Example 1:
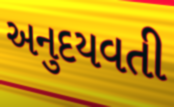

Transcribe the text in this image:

અનુદયવતી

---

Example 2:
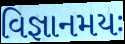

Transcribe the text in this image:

વિજ્ઞાનમયઃ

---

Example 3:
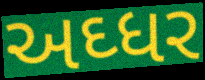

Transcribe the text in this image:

અઘ્ધર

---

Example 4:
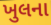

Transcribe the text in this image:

ખુલના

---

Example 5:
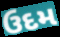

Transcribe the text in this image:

ઉદમ